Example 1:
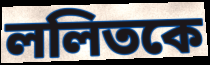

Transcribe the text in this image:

ললিতকে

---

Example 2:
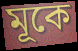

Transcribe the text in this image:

মূকে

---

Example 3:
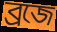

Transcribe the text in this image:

ব্রজে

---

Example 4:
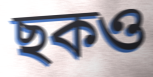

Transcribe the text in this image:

ছকও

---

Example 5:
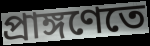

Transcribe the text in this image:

প্রাঙ্গণেতে